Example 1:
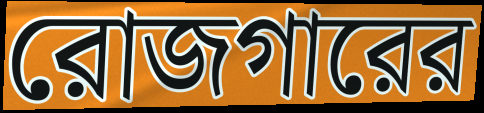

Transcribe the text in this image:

রোজগারের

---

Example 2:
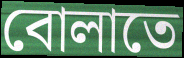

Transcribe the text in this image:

বোলাতে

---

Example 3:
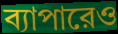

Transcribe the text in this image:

ব্যাপারেও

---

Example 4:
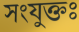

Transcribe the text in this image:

সংযুক্তঃ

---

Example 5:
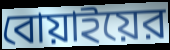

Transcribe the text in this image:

বোয়াইয়ের